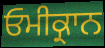
ਓਮੀਕ੍ਰਾਨ